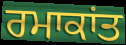
ਰਮਾਕਾਂਤ